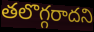
తలొగ్గరాదని